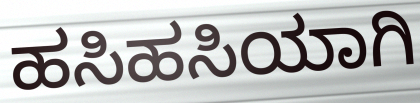
ಹಸಿಹಸಿಯಾಗಿ